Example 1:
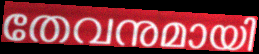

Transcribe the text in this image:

തേവനുമായി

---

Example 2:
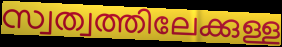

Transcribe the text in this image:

സ്വത്വത്തിലേക്കുള്ള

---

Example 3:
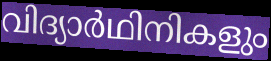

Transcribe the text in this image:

വിദ്യാർഥിനികളും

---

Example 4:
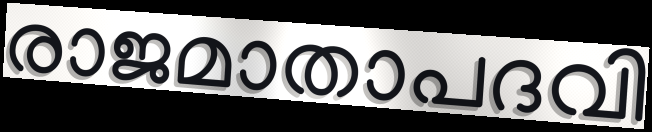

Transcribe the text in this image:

രാജമാതാപദവി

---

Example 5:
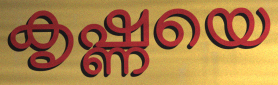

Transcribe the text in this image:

കൃഷ്ണയെ